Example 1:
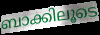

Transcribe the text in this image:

ബാക്കിലൂടെ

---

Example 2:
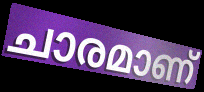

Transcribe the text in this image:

ചാരമാണ്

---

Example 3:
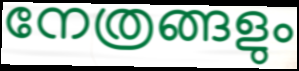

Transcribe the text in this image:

നേത്രങ്ങളും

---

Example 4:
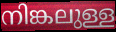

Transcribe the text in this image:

നിങ്കലുള്ള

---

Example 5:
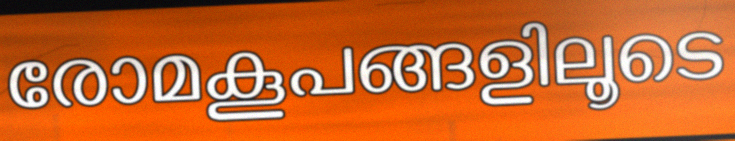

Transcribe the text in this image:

രോമകൂപങ്ങളിലൂടെ